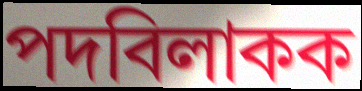
পদবিলাকক